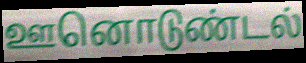
ஊனொடுண்டல்